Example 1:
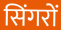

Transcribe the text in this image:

सिंगरों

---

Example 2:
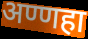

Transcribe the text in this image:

अण्णहा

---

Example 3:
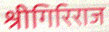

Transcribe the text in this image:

श्रीगिरिराज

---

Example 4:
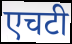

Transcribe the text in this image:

एचटी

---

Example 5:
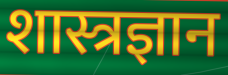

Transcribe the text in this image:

शास्त्रज्ञान